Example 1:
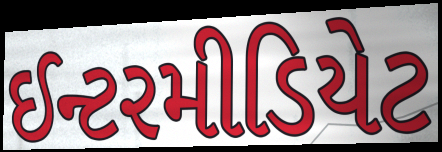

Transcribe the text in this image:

ઈન્ટરમીડિયેટ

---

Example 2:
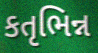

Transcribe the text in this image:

કતૃભિન્ન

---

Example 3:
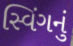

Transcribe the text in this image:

સ્વિંગનું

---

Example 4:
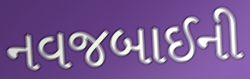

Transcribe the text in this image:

નવજબાઈની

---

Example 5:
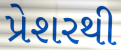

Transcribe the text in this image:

પ્રેશરથી